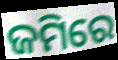
ଜମିରେ